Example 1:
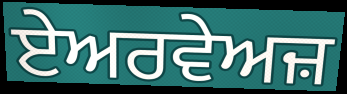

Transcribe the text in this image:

ਏਅਰਵੇਅਜ਼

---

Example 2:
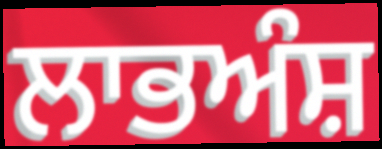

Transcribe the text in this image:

ਲਾਭਅੰਸ਼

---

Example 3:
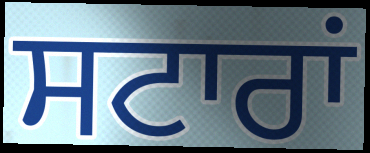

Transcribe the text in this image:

ਸਟਾਰਾਂ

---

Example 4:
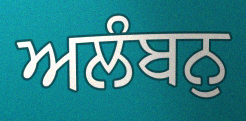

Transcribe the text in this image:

ਅਲੰਬਨੁ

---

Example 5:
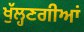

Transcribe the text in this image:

ਖੁੱਲ੍ਹਣਗੀਆਂ